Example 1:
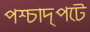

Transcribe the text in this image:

পশ্চাদ্‌পটে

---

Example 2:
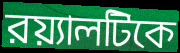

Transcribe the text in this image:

রয়্যালটিকে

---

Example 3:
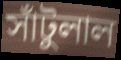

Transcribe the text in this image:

সাঁটুলাল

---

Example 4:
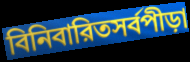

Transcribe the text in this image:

বিনিবারিতসর্বপীড়া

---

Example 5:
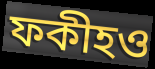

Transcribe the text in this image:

ফকীহও